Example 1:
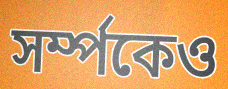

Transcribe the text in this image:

সৰ্ম্পকেও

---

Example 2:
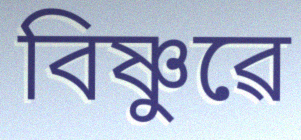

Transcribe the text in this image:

বিষ্ণুৱে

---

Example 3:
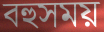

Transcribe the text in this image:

বহুসময়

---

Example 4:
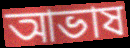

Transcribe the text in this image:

আভাষ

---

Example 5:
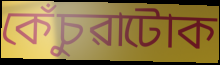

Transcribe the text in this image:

কেঁচুৱাটোক